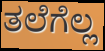
ತಲೆಗೆಲ್ಲ